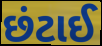
છંટાઈ